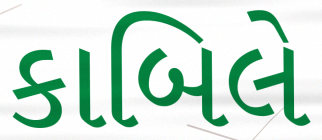
કાબિલે